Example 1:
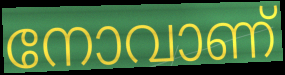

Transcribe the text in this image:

നോവാണ്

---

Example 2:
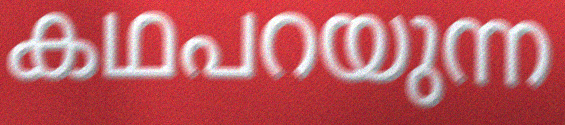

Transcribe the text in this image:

കഥപറയുന്ന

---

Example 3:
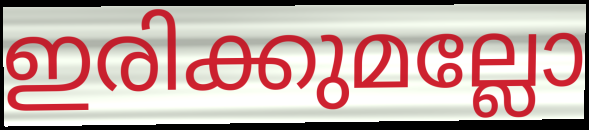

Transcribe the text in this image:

ഇരിക്കുമല്ലോ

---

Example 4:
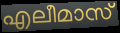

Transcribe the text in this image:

എലീമാസ്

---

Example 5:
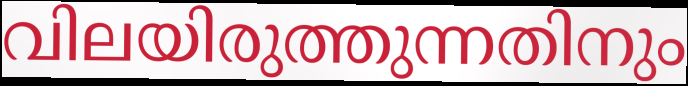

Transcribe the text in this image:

വിലയിരുത്തുന്നതിനും